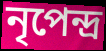
নৃপেন্দ্র